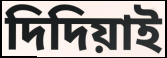
দিদিয়াই